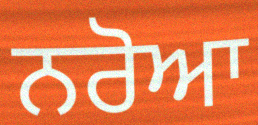
ਨਰੋਆ